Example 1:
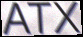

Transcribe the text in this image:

ATX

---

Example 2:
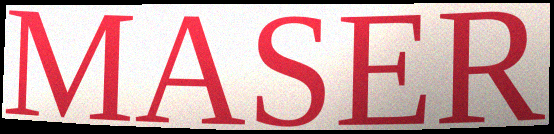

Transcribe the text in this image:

MASER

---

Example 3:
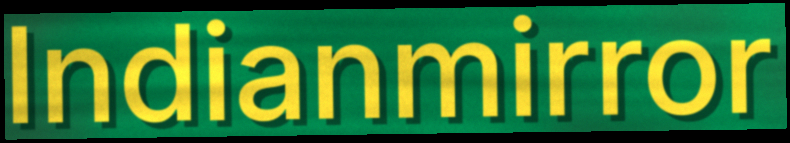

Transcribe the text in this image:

Indianmirror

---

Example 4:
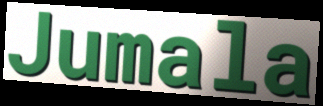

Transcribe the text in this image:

Jumala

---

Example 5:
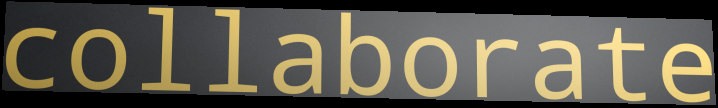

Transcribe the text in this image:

collaborate